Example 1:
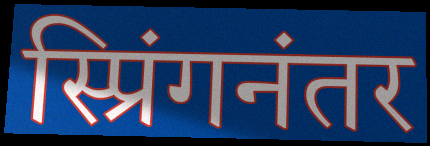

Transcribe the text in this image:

स्प्रिंगनंतर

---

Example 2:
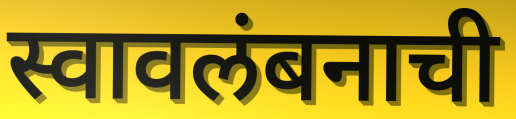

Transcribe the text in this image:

स्वावलंबनाची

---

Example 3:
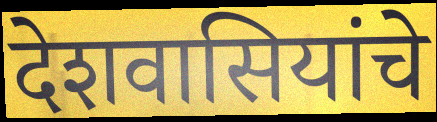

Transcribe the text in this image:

देशवासियांचे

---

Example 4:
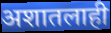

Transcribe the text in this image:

अशातलाही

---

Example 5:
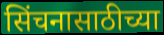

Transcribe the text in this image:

सिंचनासाठीच्या